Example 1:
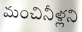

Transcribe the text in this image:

మంచినీళ్లని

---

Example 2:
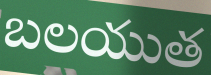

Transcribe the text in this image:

బలయుత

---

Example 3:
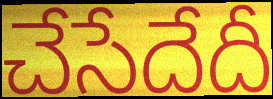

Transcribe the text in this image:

చేసేదేదీ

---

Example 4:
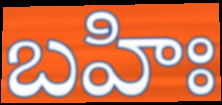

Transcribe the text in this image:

బహిః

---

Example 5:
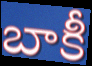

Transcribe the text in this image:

బాకీ